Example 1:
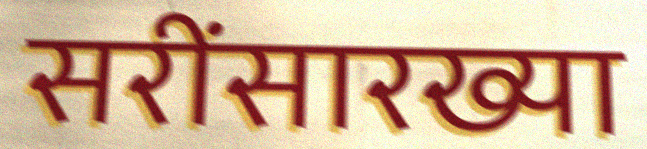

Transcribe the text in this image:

सरींसारख्या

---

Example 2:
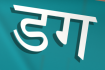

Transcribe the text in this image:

डग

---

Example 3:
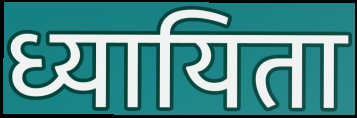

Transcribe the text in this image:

ध्यायिता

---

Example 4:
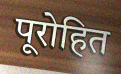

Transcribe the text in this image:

पूरोहित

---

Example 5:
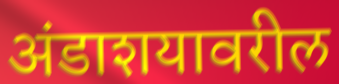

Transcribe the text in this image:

अंडाशयावरील